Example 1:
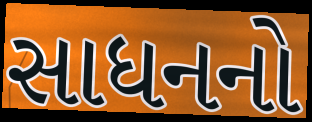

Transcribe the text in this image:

સાધનનો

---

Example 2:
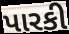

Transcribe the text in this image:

પારકી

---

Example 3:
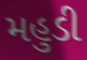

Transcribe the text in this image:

મહુડી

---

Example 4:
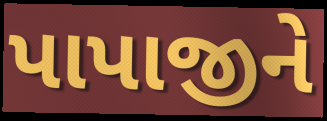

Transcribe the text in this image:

પાપાજીને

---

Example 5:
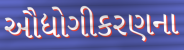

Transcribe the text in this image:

ઔદ્યોગીકરણના